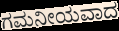
ಗಮನೀಯವಾದ